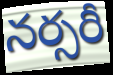
నర్సరీ